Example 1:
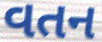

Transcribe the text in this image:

વતન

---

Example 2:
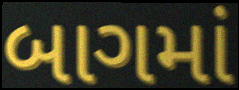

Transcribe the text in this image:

બાગમાં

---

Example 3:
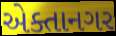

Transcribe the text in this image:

એક્તાનગર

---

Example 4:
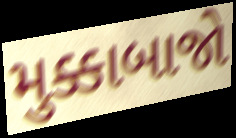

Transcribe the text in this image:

મુક્કાબાજો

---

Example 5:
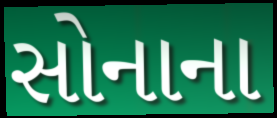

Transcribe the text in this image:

સોનાના